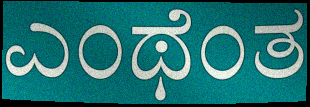
ಎಂಥೆಂತ